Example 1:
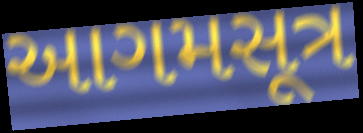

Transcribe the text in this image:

આગમસૂત્ર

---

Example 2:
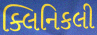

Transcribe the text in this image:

ક્લિનિકલી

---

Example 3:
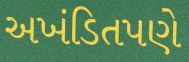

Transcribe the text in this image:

અખંડિતપણે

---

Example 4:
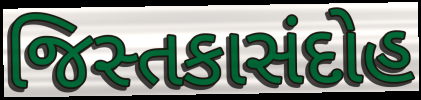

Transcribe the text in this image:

જિસ્તકાસંદોહ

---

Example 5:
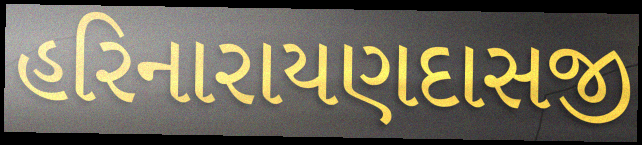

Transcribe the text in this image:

હરિનારાયણદાસજી